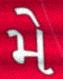
મે